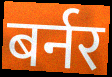
बर्नर